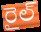
రైల్